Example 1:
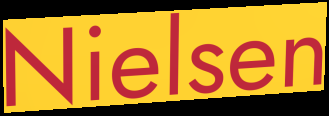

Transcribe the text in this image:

Nielsen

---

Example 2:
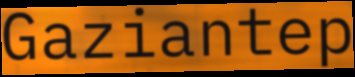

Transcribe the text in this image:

Gaziantep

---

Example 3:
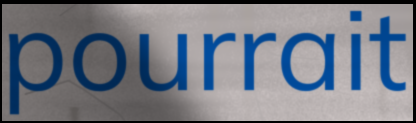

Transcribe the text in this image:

pourrait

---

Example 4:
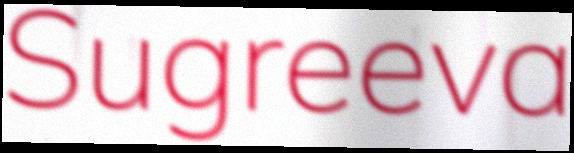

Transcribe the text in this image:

Sugreeva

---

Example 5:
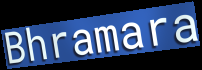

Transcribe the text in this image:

Bhramara